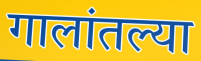
गालांतल्या